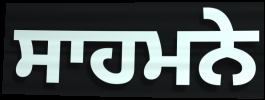
ਸਾਹਮਨੇ